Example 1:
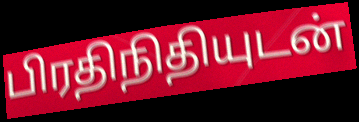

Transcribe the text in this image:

பிரதிநிதியுடன்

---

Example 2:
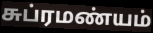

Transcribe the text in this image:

சுப்ரமண்யம்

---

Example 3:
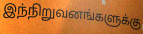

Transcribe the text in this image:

இந்நிறுவனங்களுக்கு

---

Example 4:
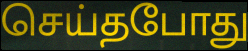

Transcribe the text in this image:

செய்தபோது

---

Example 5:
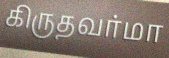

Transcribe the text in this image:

கிருதவர்மா